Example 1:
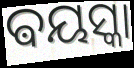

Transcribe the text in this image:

ଵୟସ୍କା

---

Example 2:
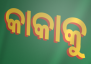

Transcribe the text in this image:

କାକାକୁ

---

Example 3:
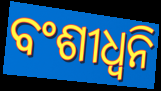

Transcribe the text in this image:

ବଂଶୀଧ୍ବନି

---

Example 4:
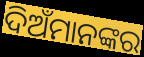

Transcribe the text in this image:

ଦିଅଁମାନଙ୍କର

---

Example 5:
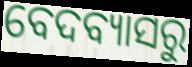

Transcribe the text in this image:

ବେଦବ୍ୟାସରୁ